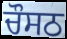
ਚੌਸਠ